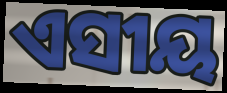
ଏସୀୟ